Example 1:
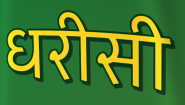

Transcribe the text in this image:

धरीसी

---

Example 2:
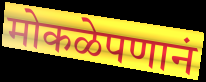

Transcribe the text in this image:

मोकळेपणानं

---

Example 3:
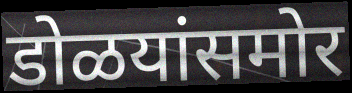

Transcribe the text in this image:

डोळयांसमोर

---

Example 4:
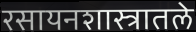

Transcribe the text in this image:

रसायनशास्त्रातले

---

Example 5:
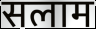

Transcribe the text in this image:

सलाम